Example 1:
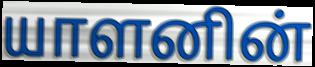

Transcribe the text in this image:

யாளனின்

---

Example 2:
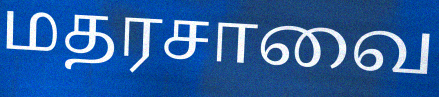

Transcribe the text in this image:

மதரசாவை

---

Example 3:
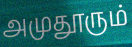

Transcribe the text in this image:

அமுதூரும்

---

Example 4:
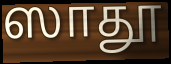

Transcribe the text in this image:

ஸாதூ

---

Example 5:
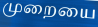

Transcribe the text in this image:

முறையை